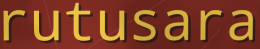
rutusara